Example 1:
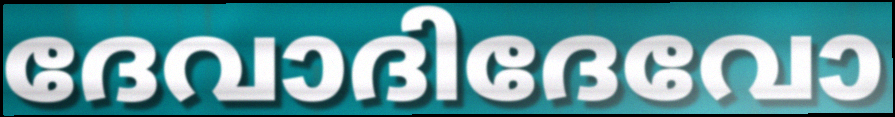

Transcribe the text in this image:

ദേവാദിദേവോ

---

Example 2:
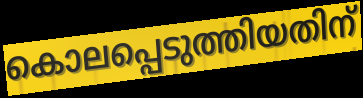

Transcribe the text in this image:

കൊലപ്പെടുത്തിയതിന്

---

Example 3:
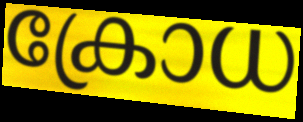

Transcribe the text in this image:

ക്രോധ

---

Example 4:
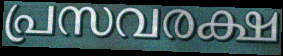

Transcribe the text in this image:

പ്രസവരക്ഷ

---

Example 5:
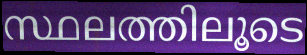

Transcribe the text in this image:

സ്ഥലത്തിലൂടെ